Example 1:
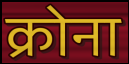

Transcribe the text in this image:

क्रोना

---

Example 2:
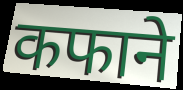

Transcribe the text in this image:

कफाने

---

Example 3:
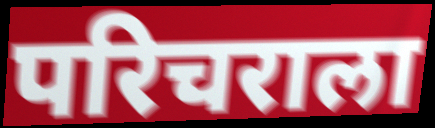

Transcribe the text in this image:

परिचराला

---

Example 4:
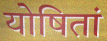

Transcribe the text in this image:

योषितां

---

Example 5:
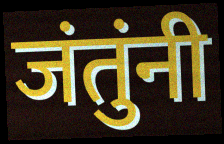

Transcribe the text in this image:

जंतुंनी